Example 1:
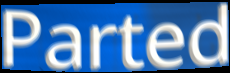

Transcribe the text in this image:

Parted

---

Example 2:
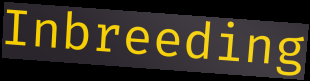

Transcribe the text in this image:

Inbreeding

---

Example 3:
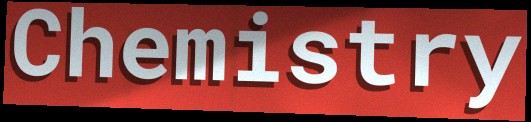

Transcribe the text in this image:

Chemistry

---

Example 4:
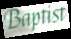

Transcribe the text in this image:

Baptist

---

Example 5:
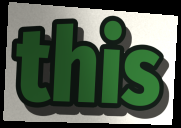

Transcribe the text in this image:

this